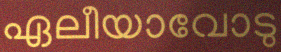
ഏലീയാവോടു